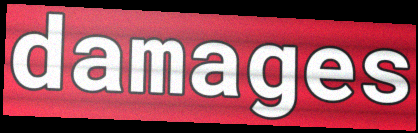
damages